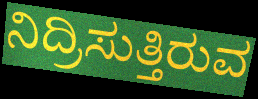
ನಿದ್ರಿಸುತ್ತಿರುವ